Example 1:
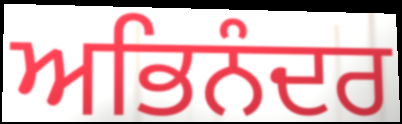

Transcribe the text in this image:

ਅਭਿਨੰਦਰ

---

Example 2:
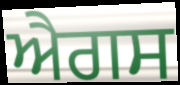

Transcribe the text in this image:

ਐਗਸ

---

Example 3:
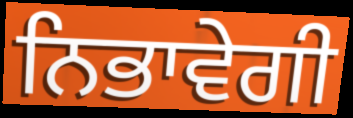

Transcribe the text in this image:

ਨਿਭਾਵੇਗੀ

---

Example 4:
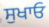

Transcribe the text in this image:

ਸੁਖਾਓ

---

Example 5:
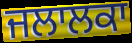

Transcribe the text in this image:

ਜਲਾਲਕਾ